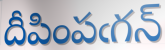
దీపింపఁగన్